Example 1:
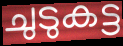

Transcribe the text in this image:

ചുടുകട്ട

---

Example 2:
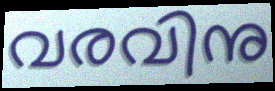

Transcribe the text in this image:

വരവിനു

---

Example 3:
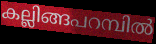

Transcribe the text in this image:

കല്ലിങ്ങപറമ്പിൽ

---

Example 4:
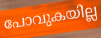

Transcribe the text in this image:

പോവുകയില്ല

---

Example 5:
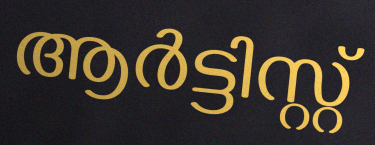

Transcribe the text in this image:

ആർട്ടിസ്റ്റ്